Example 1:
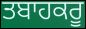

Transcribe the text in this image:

ਤਬਾਹਕਰੂ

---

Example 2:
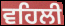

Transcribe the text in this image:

ਵਹਿਲੀ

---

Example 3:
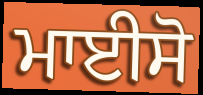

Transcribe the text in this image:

ਮਾਈਸੋ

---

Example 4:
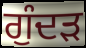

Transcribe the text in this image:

ਗੁੰਦੜ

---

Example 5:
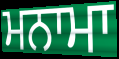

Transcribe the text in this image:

ਮਨਾਮਾ